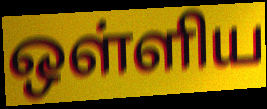
ஒள்ளிய